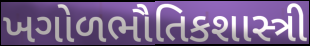
ખગોળભૌતિકશાસ્ત્રી